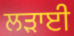
ਲੜਾਈ